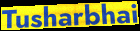
Tusharbhai